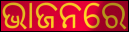
ଭାଜନରେ